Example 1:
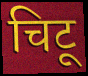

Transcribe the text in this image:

चिटू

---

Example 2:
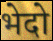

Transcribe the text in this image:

भेदो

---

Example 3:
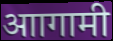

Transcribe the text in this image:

आागामी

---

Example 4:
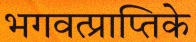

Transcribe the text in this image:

भगवत्प्राप्तिके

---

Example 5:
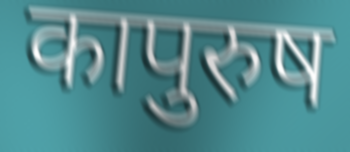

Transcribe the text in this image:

कापुरुष